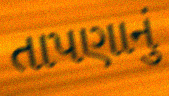
તાપણાનું